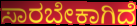
ಸಾರಬೇಕಾಗಿದೆ